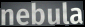
nebula